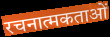
रचनात्मकताओं